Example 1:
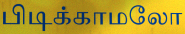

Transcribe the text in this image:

பிடிக்காமலோ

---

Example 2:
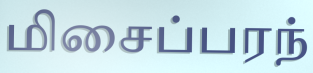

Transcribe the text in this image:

மிசைப்பரந்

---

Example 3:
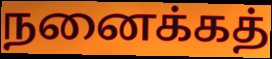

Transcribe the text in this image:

நனைக்கத்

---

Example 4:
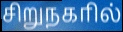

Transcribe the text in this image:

சிறுநகரில்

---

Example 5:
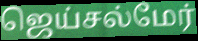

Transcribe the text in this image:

ஜெய்சல்மேர்